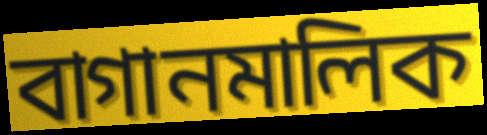
বাগানমালিক